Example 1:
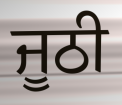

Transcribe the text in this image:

ਜੂਠੀ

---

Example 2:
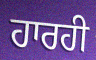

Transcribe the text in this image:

ਹਾਰਹੀ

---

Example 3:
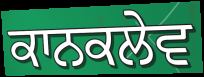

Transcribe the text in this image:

ਕਾਨਕਲੇਵ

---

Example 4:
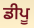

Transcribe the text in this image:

ਡੀਪੂ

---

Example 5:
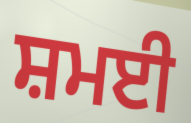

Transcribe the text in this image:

ਸ਼ਮਈ